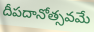
దీపదానోత్సవమే